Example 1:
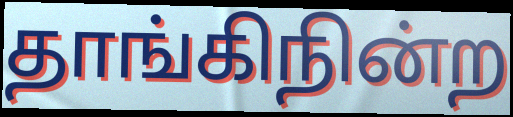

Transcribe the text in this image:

தாங்கிநின்ற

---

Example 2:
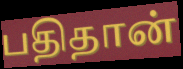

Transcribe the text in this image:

பதிதான்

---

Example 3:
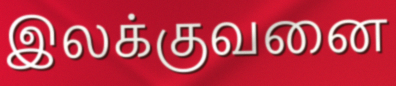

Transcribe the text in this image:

இலக்குவனை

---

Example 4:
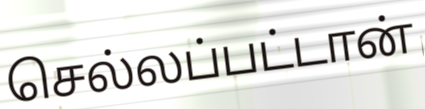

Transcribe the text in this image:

செல்லப்பட்டான்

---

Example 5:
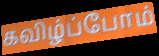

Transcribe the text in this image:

கவிழ்ப்போம்